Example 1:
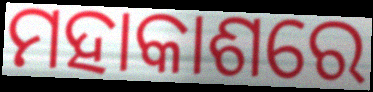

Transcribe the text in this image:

ମହାକାଶରେ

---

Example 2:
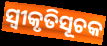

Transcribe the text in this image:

ସ୍ଵୀକୃତିସୂଚକ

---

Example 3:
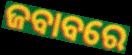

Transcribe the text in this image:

ଜବାବରେ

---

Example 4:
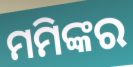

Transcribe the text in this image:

ମମିଙ୍କର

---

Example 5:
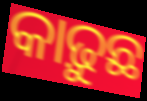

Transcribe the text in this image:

କାଢ଼ୁଛ